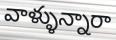
వాళ్ళున్నారా